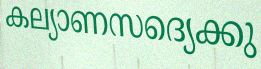
കല്യാണസദ്യെക്കു